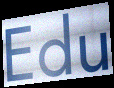
Edu